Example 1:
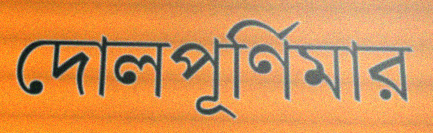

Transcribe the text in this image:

দোলপূর্ণিমার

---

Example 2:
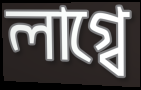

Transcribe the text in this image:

লাগ্বে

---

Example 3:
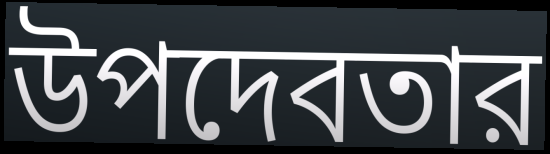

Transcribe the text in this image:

উপদেবতার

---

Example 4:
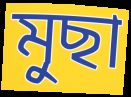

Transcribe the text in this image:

মুছা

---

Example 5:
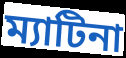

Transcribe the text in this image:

ম্যাটিনা